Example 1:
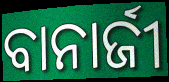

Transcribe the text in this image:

ବାନାର୍ଜୀ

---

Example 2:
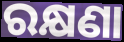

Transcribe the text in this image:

ରକ୍ଷଣା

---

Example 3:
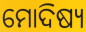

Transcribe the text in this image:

ମୋଦିଷ୍ୟ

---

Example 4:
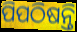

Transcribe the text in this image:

ପିପଠିଷନ୍ତି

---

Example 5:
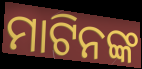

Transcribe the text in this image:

ମାଟିନଙ୍କ